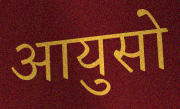
आयुसो